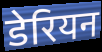
डेरियन